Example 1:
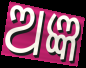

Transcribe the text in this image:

ଅଜ୍ଞ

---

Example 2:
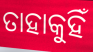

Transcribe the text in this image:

ତାହାକୁହିଁ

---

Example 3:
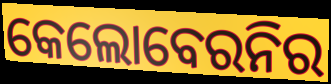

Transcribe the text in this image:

କେଲୋବେରନିର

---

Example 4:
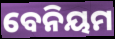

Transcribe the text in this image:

ବେନିୟମ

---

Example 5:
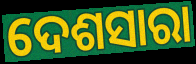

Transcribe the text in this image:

ଦେଶସାରା